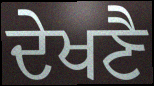
ਦੇਖਣੈ